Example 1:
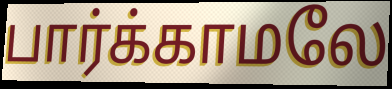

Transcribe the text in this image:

பார்க்காமலே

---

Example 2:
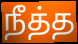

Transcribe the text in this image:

நீத்த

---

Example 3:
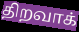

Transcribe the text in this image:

திறவாக்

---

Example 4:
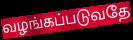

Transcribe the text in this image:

வழங்கப்படுவதே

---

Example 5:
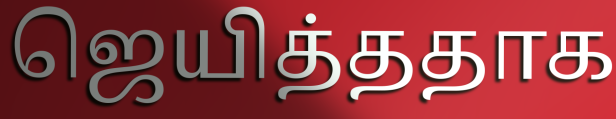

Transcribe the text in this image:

ஜெயித்ததாக